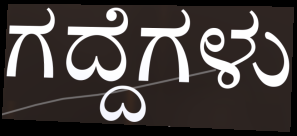
ಗದ್ದೆಗಳು